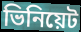
ভিনিয়েট